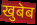
खुबेब